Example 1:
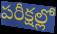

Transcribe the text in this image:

పరీక్షల్లో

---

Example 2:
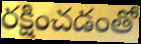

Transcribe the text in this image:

రక్షించడంతో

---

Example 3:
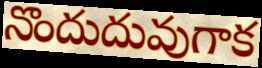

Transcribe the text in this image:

నొందుదువుగాక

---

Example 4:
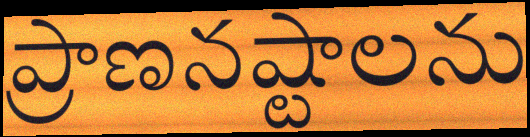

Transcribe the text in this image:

ప్రాణనష్టాలను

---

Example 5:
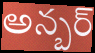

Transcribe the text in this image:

అన్బర్